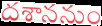
దశాననుం